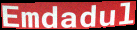
Emdadul